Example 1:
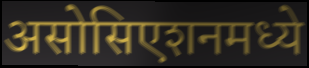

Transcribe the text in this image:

असोसिएशनमध्ये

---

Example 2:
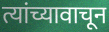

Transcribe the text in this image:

त्यांच्यावाचून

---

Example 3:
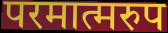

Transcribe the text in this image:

परमात्मरुप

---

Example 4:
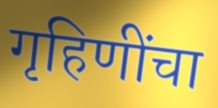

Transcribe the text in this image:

गृहिणींचा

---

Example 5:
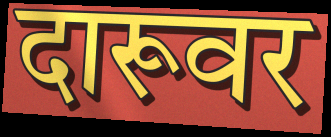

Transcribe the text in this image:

दारूवर